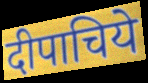
दीपाचिये